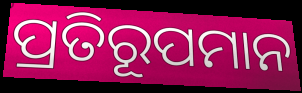
ପ୍ରତିରୂପମାନ